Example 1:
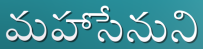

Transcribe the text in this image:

మహాసేనుని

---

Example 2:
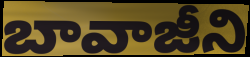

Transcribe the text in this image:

బావాజీని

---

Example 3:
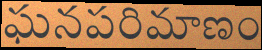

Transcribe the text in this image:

ఘనపరిమాణం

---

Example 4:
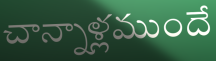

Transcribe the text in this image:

చాన్నాళ్లముందే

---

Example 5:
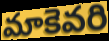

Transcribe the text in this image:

మాకెవరి